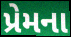
પ્રેમના